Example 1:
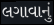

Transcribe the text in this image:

લગાવાનું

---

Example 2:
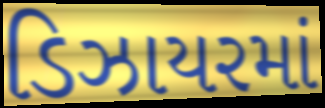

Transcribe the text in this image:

ડિઝાયરમાં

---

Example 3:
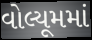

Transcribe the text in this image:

વોલ્યૂમમાં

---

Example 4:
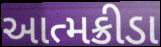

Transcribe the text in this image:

આત્મક્રીડા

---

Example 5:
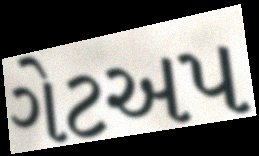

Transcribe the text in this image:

ગેટઅપ